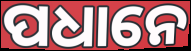
ପଧାନେ